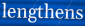
lengthens